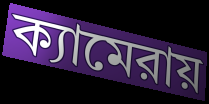
ক্যামেরায়